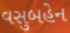
વસુબહેન